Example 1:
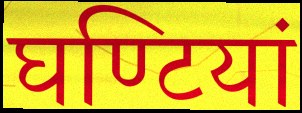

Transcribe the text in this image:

घण्टियां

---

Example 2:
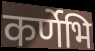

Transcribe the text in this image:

कर्णेभि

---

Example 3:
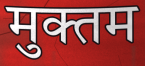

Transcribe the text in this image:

मुक्तम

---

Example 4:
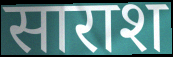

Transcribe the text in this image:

साराश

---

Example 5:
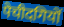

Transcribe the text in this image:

पेचीदगियों